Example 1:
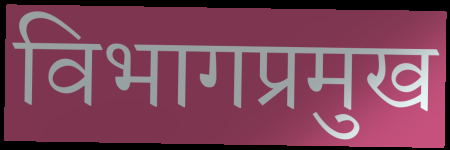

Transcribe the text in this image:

विभागप्रमुख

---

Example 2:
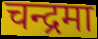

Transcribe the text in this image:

चन्द्रमा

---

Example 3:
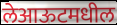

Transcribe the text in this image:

लेआऊटमधील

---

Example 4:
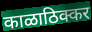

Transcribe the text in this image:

काळाठिक्कर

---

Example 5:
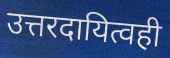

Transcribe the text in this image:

उत्तरदायित्वही